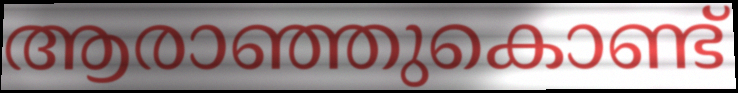
ആരാഞ്ഞുകൊണ്ട്